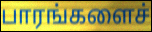
பாரங்களைச்